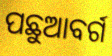
ପଛୁଆବର୍ଗ